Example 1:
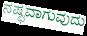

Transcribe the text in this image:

ನಷ್ಟವಾಗುವುದು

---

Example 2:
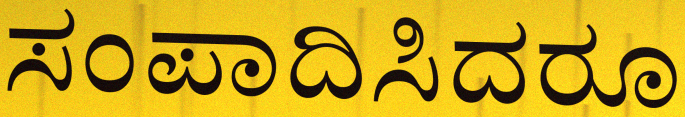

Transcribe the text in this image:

ಸಂಪಾದಿಸಿದರೂ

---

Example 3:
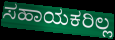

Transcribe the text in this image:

ಸಹಾಯಕರಿಲ್ಲ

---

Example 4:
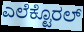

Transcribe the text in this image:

ಎಲೆಕ್ಟೊರಲ್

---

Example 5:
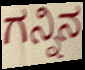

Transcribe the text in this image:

ಗನ್ನಿನ